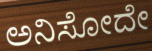
ಅನಿಸೋದೇ